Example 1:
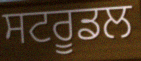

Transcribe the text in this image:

ਸਟਰੂਡਲ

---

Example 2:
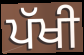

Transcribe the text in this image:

ਪੱਖੀ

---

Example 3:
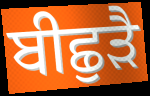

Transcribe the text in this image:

ਬੀਛੁੜੈ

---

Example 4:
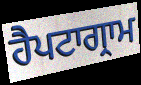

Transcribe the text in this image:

ਹੈਪਟਾਗ੍ਰਾਮ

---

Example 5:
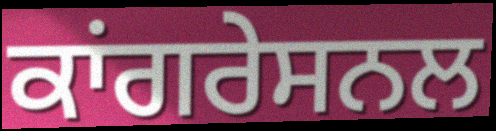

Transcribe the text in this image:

ਕਾਂਗਰੇਸਨਲ